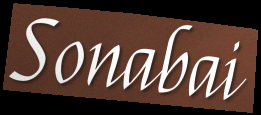
Sonabai